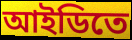
আইডিতে